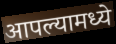
आपल्यामध्ये